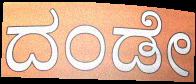
ದಂಡೇ